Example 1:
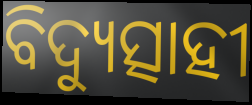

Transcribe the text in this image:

ବିଦ୍ୟୁତ୍ସାହୀ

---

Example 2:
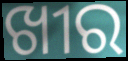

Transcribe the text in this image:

ଖୀର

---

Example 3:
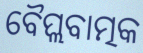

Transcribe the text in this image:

ବୈପ୍ଲବାତ୍ମକ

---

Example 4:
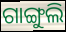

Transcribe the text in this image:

ଗାଙ୍ଗୁଲି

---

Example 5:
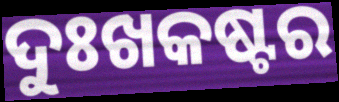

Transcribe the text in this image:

ଦୁଃଖକଷ୍ଟର